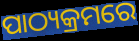
ପାଠ୍ୟକ୍ରମରେ